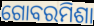
ଗୋବରମିଶା